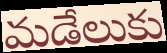
మడేలుకు